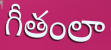
గీతంలా